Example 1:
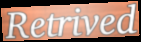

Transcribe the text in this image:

Retrived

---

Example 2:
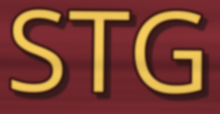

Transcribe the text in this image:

STG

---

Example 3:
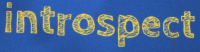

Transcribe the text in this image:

introspect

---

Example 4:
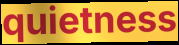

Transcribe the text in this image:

quietness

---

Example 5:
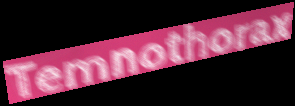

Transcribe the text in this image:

Temnothorax